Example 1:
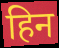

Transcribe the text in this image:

हिन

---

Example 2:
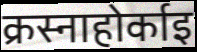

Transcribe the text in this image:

क्रस्नाहोर्काइ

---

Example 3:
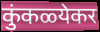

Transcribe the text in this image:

कुंकळ्येकर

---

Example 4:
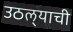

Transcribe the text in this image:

उठल्याची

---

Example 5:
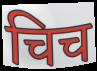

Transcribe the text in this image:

चिच